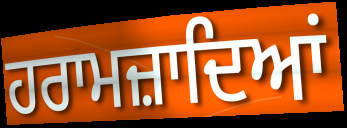
ਹਰਾਮਜ਼ਾਦਿਆਂ